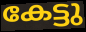
കേട്ടു